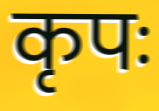
कृपः